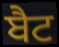
ਬੈਟ